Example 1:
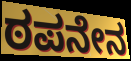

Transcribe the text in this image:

ಠಪನೇನ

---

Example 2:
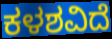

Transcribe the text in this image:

ಕಳಶವಿದೆ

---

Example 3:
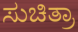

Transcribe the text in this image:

ಸುಚಿತ್ರಾ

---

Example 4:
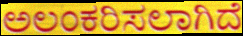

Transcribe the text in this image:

ಅಲಂಕರಿಸಲಾಗಿದೆ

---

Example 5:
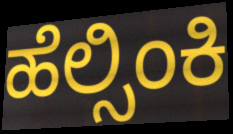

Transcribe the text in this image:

ಹೆಲ್ಸಿಂಕಿ